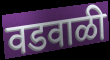
वडवाळी